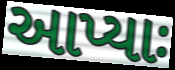
આપ્યાઃ